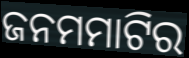
ଜନମମାଟିର